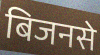
बिजनसे